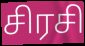
சிரசி